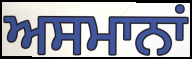
ਅਸਮਾਨਾਂ